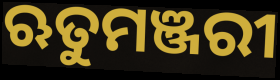
ଋତୁମଞ୍ଜରୀ